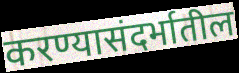
करण्यासंदर्भातील